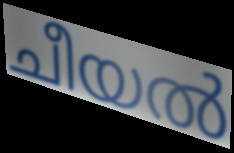
ചീയൽ